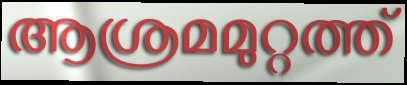
ആശ്രമമുറ്റത്ത്